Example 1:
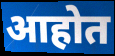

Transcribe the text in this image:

आहोत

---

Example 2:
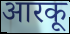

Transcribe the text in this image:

आरकू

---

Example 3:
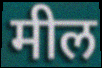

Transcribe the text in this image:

मील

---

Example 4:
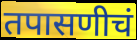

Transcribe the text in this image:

तपासणीचं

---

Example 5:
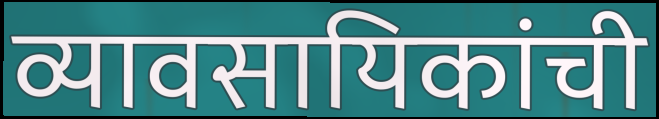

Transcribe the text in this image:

व्यावसायिकांची